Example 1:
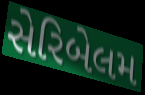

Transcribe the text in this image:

સેરિબેલમ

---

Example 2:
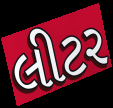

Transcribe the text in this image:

લીટર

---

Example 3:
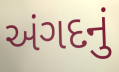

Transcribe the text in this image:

અંગદનું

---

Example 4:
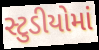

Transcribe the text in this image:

સ્ટુડીયોમાં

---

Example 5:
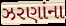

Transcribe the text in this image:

ઝરણાંના